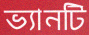
ভ্যানটি